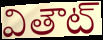
వితౌట్